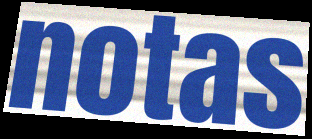
notas